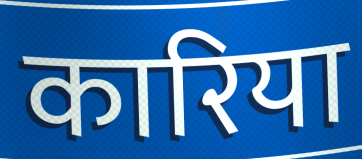
कारिया